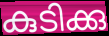
കുടിക്കു